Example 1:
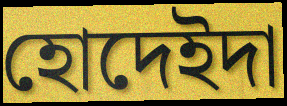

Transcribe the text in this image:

হোদেইদা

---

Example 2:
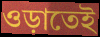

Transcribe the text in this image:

ওড়াতেই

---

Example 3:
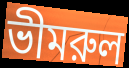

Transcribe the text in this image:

ভীমরুল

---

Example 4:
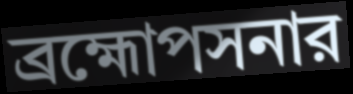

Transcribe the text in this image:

ব্রহ্মোপসনার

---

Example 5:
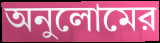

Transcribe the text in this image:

অনুলোমের